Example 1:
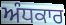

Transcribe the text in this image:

ਅੰਧਕਾਰ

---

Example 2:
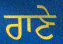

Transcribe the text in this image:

ਰਾਣੇ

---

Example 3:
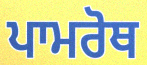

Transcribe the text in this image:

ਪਾਮਰੋਥ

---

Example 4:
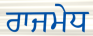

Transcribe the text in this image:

ਰਾਜਮੇਧ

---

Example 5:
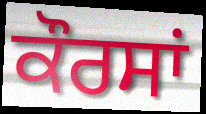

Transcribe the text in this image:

ਕੌਰਸਾਂ